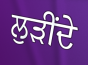
ਲੁੜੀਂਦੇ